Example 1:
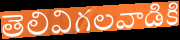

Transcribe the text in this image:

తెలివిగలవాడికి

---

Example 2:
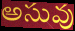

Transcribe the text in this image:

అసువు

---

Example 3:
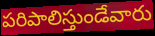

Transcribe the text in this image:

పరిపాలిస్తుండేవారు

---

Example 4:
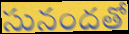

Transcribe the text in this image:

సునందతో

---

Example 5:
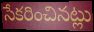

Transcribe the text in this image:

సేకరించినట్లు